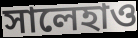
সালেহাও